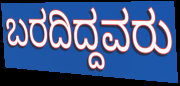
ಬರದಿದ್ದವರು